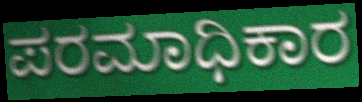
ಪರಮಾಧಿಕಾರ